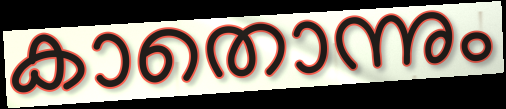
കാതൊന്നും